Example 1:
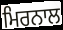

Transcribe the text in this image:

ਮਿਰਨਾਲ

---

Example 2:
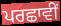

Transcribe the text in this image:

ਪਰਛਾਵੀਂ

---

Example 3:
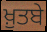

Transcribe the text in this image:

ਖ਼ੁਤਬੇ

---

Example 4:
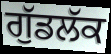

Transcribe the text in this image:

ਗੁੱਡਲੱਕ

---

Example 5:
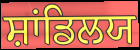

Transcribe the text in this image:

ਸ਼ਾਂਡਿਲਯ